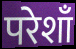
परेशाँ